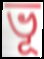
ভূ